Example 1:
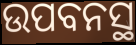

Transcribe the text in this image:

ଉପବନସ୍ଥ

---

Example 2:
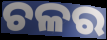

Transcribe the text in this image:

ଚଳର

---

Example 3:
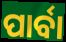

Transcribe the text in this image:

ପାର୍ବା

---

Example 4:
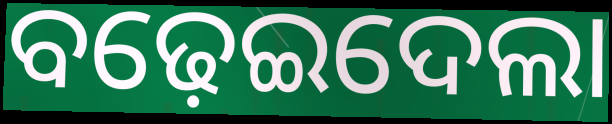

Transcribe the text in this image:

ବଢ଼େଇଦେଲା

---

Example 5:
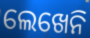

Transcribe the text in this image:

ଲେଖେନି